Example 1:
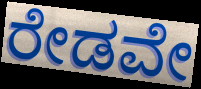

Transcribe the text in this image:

ರೇಡವೇ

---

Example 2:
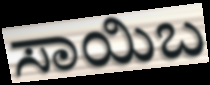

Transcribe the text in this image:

ಸಾಯಿಬ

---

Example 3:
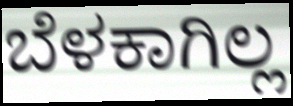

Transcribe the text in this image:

ಬೆಳಕಾಗಿಲ್ಲ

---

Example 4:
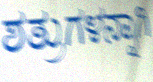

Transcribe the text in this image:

ಶತ್ರುಗಳನ್ನಾಗಿ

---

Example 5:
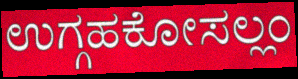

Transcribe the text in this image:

ಉಗ್ಗಹಕೋಸಲ್ಲಂ